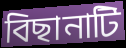
বিছানাটি